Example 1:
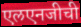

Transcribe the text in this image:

एलएनजीची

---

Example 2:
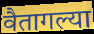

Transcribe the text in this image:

वैतागल्या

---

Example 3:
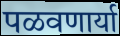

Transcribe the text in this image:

पळवणार्या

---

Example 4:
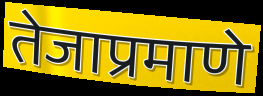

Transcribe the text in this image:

तेजाप्रमाणे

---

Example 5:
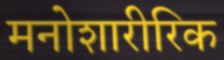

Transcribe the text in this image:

मनोशारीरिक